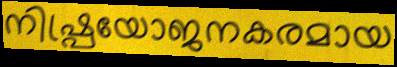
നിഷ്പ്രയോജനകരമായ